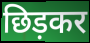
छिड़कर